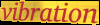
vibration